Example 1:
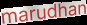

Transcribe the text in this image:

marudhan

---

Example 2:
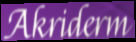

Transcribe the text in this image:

Akriderm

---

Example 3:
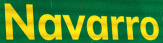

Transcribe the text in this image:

Navarro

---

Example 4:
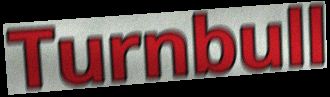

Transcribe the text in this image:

Turnbull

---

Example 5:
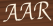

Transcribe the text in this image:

AAR